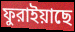
ফুরাইয়াছে